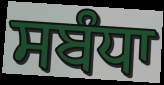
ਸਬੰਧਾ